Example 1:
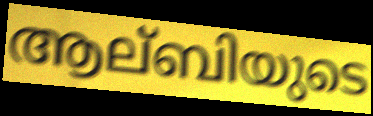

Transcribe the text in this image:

ആല്ബിയുടെ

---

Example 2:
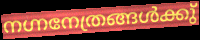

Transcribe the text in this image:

നഗ്നനേത്രങ്ങൾക്കു്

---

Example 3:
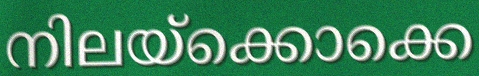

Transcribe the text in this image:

നിലയ്ക്കൊക്കെ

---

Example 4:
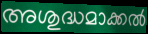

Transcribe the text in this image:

അശുദ്ധമാക്കൽ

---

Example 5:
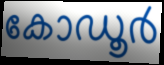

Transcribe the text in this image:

കോഡൂർ